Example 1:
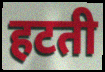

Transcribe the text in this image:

हटती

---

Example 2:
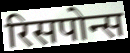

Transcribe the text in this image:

रिसपोन्स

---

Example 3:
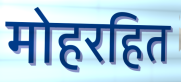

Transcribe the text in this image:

मोहरहित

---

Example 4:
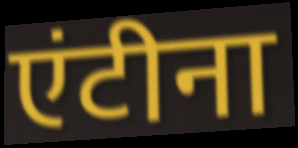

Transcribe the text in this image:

एंटीना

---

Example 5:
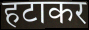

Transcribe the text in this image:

हटाकर